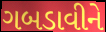
ગબડાવીને